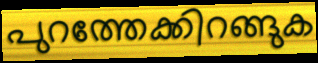
പുറത്തേക്കിറങ്ങുക